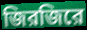
জিরজিরে